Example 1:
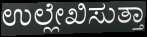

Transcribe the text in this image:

ಉಲ್ಲೇಖಿಸುತ್ತಾ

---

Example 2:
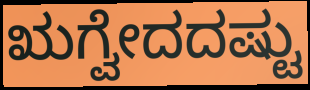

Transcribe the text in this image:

ಋಗ್ವೇದದಷ್ಟು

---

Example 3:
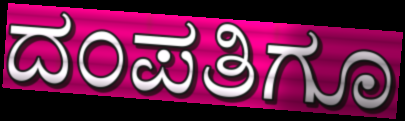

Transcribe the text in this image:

ದಂಪತಿಗೂ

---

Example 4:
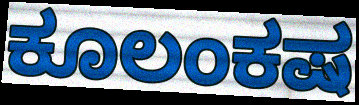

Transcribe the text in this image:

ಕೂಲಂಕಷ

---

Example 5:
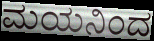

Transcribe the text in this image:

ಮಯನಿಂದ